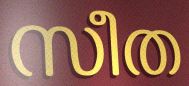
സീത